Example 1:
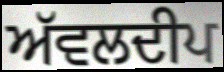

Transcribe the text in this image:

ਅੱਵਲਦੀਪ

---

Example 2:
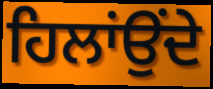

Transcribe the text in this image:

ਹਿਲਾਂਉਂਦੇ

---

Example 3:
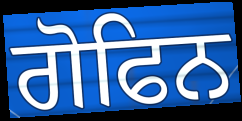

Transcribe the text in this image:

ਗੋਫਿਨ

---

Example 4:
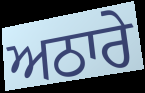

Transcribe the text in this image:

ਅਠਾਰੇ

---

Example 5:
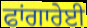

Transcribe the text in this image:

ਫਾਂਗਾਰੇਈ